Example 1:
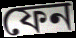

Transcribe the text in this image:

ফেন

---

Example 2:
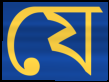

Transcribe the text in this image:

যে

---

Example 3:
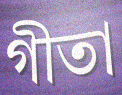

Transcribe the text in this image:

গীতা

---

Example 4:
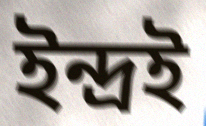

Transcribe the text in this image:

ইন্দ্ৰই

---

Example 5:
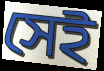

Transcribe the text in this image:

সেই